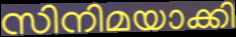
സിനിമയാക്കി